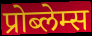
प्रोब्लेम्स